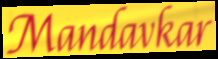
Mandavkar